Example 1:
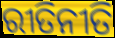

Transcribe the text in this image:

ରୀତିନୀତି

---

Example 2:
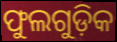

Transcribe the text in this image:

ଫୁଲଗୁଡ଼ିକ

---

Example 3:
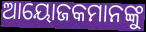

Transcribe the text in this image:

ଆୟୋଜକମାନଙ୍କୁ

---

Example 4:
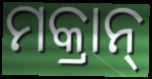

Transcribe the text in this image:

ମକ୍ରାନ୍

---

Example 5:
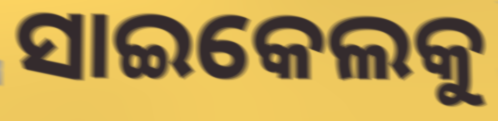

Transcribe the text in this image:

ସାଇକେଲକୁ